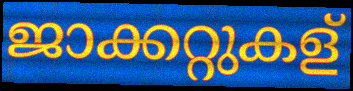
ജാക്കറ്റുകള്